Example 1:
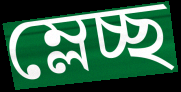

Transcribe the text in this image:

ম্লেচ্ছ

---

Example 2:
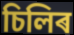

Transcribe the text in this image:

চিলিৰ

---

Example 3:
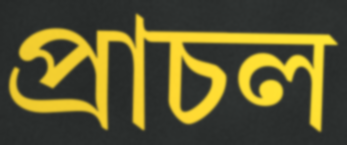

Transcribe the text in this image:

প্ৰাচল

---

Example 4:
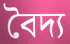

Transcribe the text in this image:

বৈদ্য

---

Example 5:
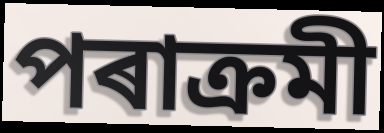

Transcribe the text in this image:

পৰাক্ৰমী